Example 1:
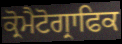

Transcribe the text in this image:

ਕ੍ਰੋਮੈਟੋਗ੍ਰਾਫਿਕ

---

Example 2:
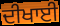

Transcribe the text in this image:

ਦੀਖਾਈ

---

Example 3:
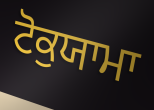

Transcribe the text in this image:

ਟੋਕੁਯਾਮਾ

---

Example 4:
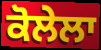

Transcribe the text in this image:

ਕੋਲੇਲਾ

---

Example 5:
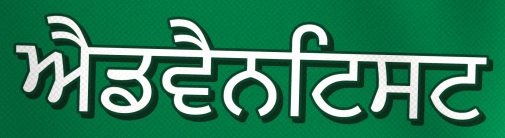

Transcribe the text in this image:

ਐਡਵੈਨਟਿਸਟ